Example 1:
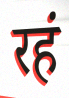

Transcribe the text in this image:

रहं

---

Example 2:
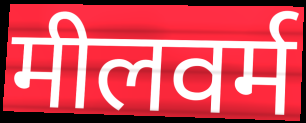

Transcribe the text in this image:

मीलवर्म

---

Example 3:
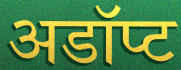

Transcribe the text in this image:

अडॉप्‍ट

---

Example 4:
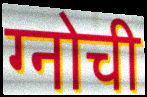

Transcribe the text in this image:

ग्नोची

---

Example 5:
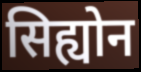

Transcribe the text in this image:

सिह्योन